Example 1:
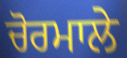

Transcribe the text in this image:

ਚੋਰਮਾਲੇ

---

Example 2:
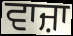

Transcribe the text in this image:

ਵਾਜ਼ਾ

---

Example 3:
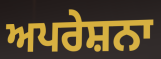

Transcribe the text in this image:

ਅਪਰੇਸ਼ਨਾ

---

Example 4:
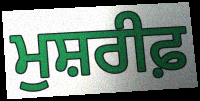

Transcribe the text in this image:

ਮੁਸ਼ਰੀਫ਼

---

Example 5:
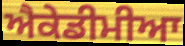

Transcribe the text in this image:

ਐਕੇਡੀਮੀਆ